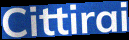
Cittirai